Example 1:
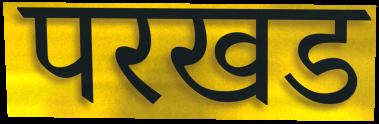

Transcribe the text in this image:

परखड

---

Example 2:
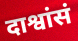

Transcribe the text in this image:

दाश्वांसं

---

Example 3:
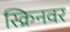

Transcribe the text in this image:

स्क्रिनवर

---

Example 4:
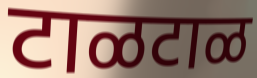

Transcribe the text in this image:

टाळटाळ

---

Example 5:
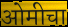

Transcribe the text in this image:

ओमीचा